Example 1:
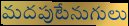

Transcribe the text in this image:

మదపుటేనుగులు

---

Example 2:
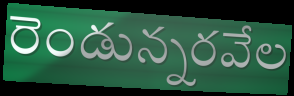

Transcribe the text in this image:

రెండున్నరవేల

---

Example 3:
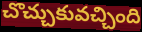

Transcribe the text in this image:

చొచ్చుకువచ్చింది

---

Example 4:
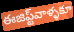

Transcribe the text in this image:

ఈజిప్ట్‌వాళ్ళకూ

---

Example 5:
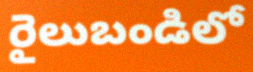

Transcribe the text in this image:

రైలుబండిలో